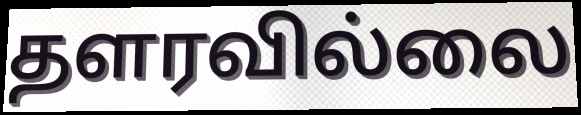
தளரவில்லை